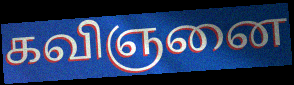
கவிஞனை